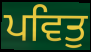
ਪਵਿਤੁ